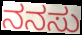
ನನಸು